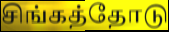
சிங்கத்தோடு